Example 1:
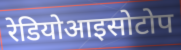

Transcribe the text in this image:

रेडियोआइसोटोप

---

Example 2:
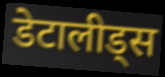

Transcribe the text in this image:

डेटालीड्स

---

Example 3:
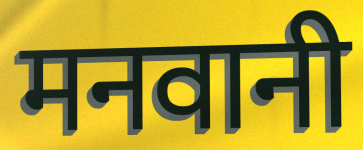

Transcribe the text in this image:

मनवानी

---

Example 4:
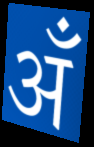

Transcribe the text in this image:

अँ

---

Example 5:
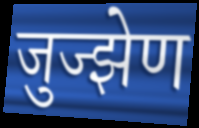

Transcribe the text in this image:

जुज्झेण